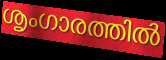
ശൃംഗാരത്തിൽ